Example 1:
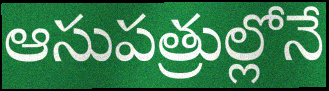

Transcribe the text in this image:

ఆసుపత్రుల్లోనే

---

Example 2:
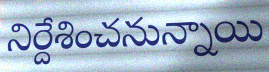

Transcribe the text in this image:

నిర్దేశించనున్నాయి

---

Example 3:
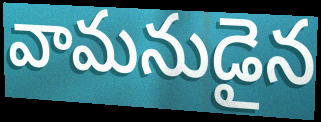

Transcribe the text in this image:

వామనుడైన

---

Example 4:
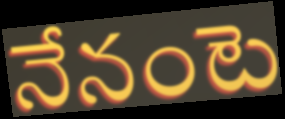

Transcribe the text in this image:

నేనంటె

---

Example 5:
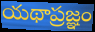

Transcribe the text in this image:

యథాప్రజ్ఞం